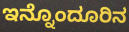
ಇನ್ನೊಂದೂರಿನ